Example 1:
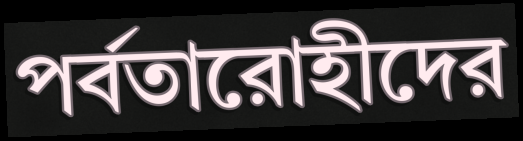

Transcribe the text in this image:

পর্বতারোহীদের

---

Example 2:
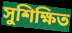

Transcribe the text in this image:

সুশিক্ষিত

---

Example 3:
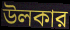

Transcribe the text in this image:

উলকার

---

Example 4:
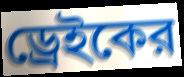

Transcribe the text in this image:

ড্রেইকের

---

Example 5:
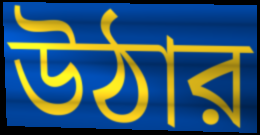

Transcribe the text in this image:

উঠার